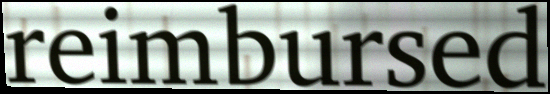
reimbursed